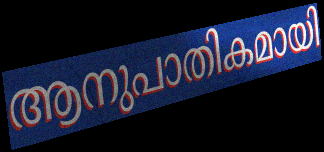
ആനുപാതികമായി